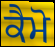
ਕੈਮੋ